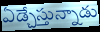
ఏడ్చేస్తున్నాడు